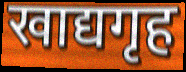
खाद्यगृह